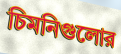
চিমনিগুলোর